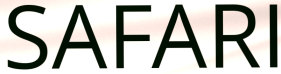
SAFARI